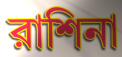
রাশিনা